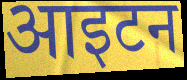
आइटन